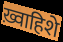
ख़्वाहिशे